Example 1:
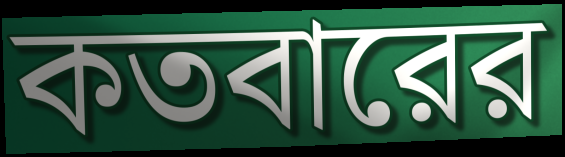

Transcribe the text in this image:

কতবারের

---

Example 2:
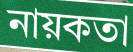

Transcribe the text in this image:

নায়কতা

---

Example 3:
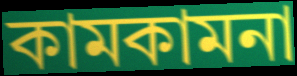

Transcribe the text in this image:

কামকামনা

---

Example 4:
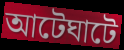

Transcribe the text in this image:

আটেঘাটে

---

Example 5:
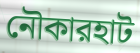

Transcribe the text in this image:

নৌকারহাট